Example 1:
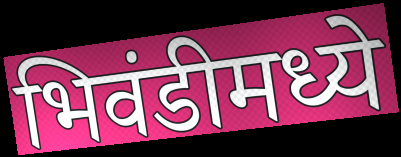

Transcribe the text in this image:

भिवंडीमध्ये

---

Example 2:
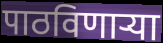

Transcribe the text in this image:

पाठविणाऱ्या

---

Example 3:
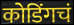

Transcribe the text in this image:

कोडिंगचं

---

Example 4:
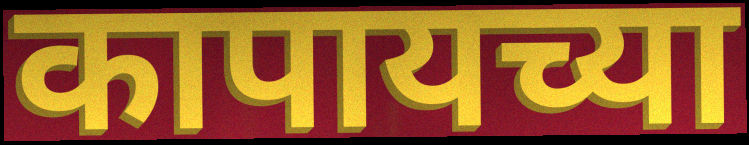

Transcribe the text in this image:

कापायच्या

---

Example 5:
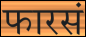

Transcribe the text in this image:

फारसं